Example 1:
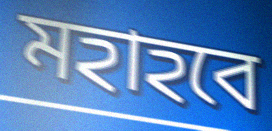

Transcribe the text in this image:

মহাহবে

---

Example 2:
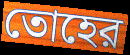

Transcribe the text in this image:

তোহের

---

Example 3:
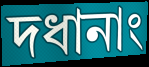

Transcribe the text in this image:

দধানাং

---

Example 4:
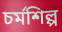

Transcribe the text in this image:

চর্মশিল্প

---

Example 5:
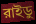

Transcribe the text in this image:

রাইডু